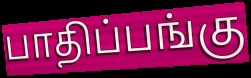
பாதிப்பங்கு